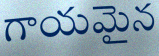
గాయమైన